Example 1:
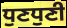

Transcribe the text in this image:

ਧੁਣਧੁਣੀ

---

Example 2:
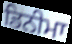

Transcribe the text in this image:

ਡਿਨੀਮਾ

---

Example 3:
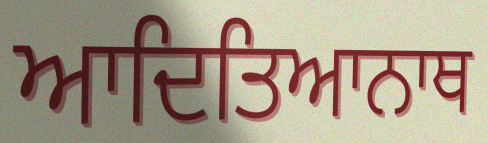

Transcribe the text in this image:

ਆਦਿਤਿਆਨਾਥ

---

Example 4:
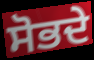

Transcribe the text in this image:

ਸੋਭਦੇ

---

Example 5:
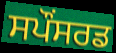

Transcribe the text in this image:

ਸਪੌਂਸਰਡ